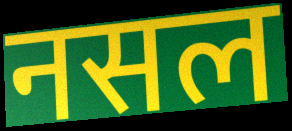
नसल